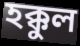
হক্কুল